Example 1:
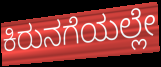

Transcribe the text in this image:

ಕಿರುನಗೆಯಲ್ಲೇ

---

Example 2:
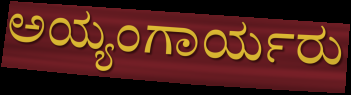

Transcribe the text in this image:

ಅಯ್ಯಂಗಾರ್ಯರು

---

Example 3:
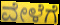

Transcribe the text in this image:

ವೇಳೆಗೆ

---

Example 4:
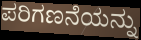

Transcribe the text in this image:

ಪರಿಗಣನೆಯನ್ನು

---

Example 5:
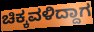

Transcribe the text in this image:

ಚಿಕ್ಕವಳಿದ್ದಾಗ